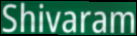
Shivaram